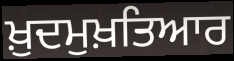
ਖ਼ੁਦਮੁਖ਼ਤਿਆਰ